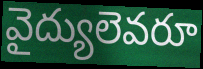
వైద్యులెవరూ